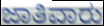
ಜಾತಿವಾರು